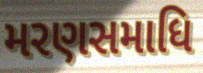
મરણસમાધિ